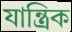
যান্ত্রিক